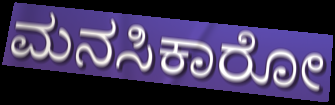
ಮನಸಿಕಾರೋ